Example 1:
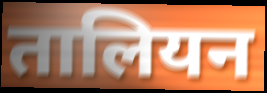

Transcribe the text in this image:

तालियन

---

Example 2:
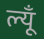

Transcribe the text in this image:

ल्यूँ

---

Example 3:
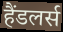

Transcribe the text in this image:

हैंडलर्स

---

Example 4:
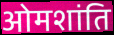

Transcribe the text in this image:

ओमशांति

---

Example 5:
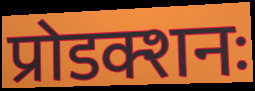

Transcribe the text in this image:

प्रोडक्शनः